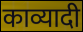
काव्यादी